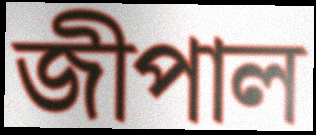
জীপাল